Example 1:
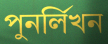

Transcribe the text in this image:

পুনর্লিখন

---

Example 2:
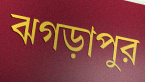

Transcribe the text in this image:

ঝগড়াপুর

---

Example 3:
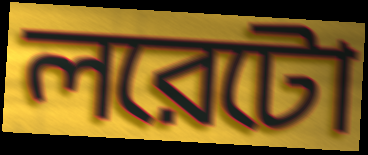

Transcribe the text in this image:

লরেটো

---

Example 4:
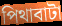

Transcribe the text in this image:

পিথাবাটা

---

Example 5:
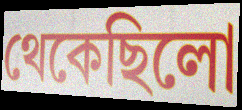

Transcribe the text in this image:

থেকেছিলো